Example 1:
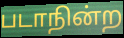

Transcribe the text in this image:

படாநின்ற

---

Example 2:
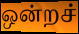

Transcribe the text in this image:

ஒன்றச்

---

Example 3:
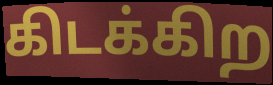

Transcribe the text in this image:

கிடக்கிற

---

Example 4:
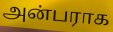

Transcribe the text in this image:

அன்பராக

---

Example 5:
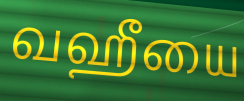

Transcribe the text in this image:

வஹீயை